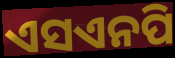
ଏସଏନପି